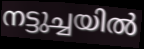
നട്ടുച്ചയിൽ